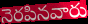
నెరపినవారు